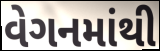
વેગનમાંથી